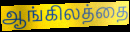
ஆங்கிலத்தை